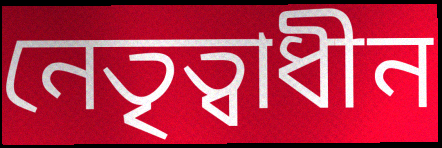
নেতৃত্বাধীন